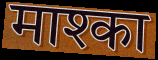
माश्का